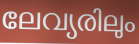
ലേവ്യരിലും